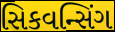
સિકવન્સિંગ